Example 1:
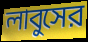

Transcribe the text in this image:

লাবুসের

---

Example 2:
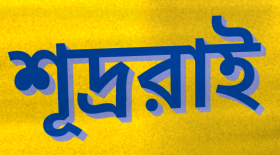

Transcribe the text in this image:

শূদ্ররাই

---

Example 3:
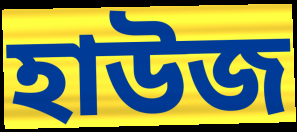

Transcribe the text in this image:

হাউজ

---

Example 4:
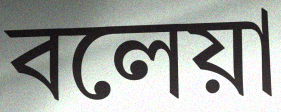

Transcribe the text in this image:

বলেয়া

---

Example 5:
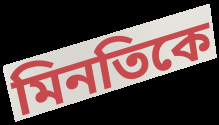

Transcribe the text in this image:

মিনতিকে